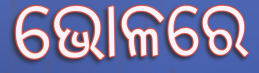
ଭୋଳରେ